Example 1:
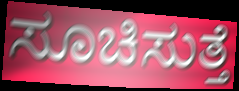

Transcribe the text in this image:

ಸೂಚಿಸುತ್ತೆ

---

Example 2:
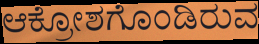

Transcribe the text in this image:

ಆಕ್ರೋಶಗೊಂಡಿರುವ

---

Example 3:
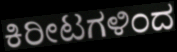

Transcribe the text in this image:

ಕಿರೀಟಗಳಿಂದ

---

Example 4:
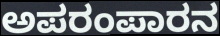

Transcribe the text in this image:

ಅಪರಂಪಾರನ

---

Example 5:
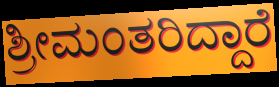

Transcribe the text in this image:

ಶ್ರೀಮಂತರಿದ್ದಾರೆ